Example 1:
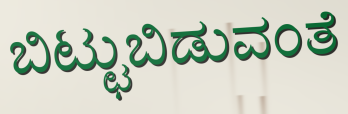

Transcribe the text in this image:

ಬಿಟ್ಟುಬಿಡುವಂತೆ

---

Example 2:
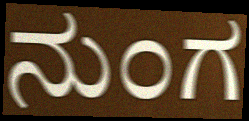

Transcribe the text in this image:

ನುಂಗ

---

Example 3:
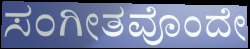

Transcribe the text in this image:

ಸಂಗೀತವೊಂದೇ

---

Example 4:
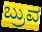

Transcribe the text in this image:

ಬ್ರುವ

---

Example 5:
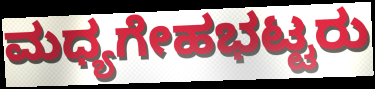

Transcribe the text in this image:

ಮಧ್ಯಗೇಹಭಟ್ಟರು